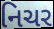
નિચર